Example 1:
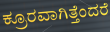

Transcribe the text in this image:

ಕ್ರೂರವಾಗಿತ್ತೆಂದರೆ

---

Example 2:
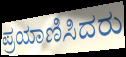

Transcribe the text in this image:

ಪ್ರಯಾಣಿಸಿದರು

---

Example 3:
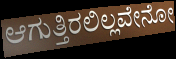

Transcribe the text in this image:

ಆಗುತ್ತಿರಲಿಲ್ಲವೇನೋ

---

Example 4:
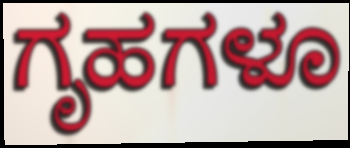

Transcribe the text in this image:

ಗೃಹಗಳೂ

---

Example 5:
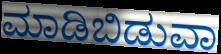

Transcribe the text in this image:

ಮಾಡಿಬಿಡುವಾ